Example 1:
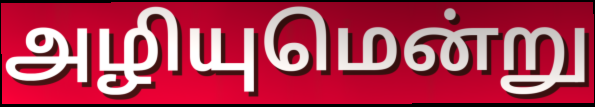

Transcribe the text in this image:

அழியுமென்று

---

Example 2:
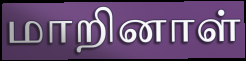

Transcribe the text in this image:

மாறினாள்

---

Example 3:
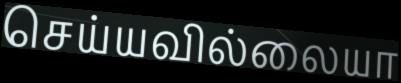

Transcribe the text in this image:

செய்யவில்லையா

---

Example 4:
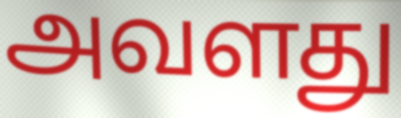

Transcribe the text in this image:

அவளது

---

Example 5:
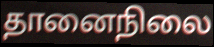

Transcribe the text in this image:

தானைநிலை